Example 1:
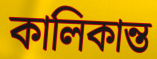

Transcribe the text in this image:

কালিকান্ত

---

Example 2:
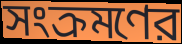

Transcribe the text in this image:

সংক্রমণের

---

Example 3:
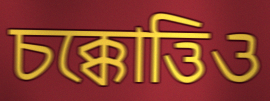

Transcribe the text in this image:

চক্কোত্তিও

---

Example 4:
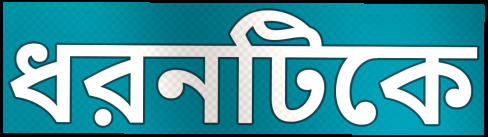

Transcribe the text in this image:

ধরনটিকে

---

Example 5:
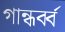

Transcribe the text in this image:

গান্ধর্ব্ব